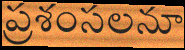
ప్రశంసలనూ